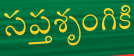
సప్తశృంగికి